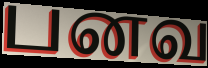
பனவ